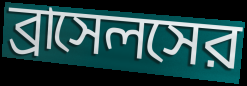
ব্রাসেলসের